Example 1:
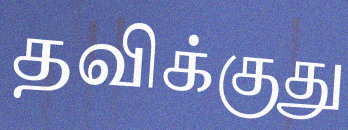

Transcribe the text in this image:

தவிக்குது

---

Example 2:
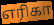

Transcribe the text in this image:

எரிகா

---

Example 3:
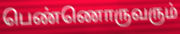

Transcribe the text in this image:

பெண்ணொருவரும்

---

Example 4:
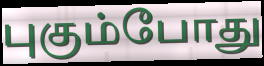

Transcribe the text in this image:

புகும்போது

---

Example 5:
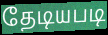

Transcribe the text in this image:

தேடியபடி